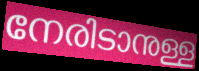
നേരിടാനുള്ള